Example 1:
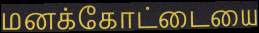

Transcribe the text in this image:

மனக்கோட்டையை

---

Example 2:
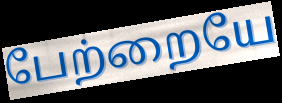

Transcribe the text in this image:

பேற்றையே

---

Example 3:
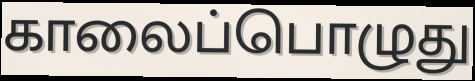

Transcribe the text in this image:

காலைப்பொழுது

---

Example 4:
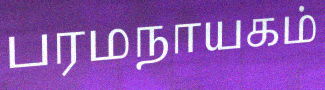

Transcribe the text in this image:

பரமநாயகம்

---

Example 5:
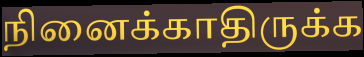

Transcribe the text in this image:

நினைக்காதிருக்க